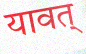
यावत्